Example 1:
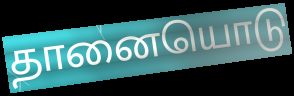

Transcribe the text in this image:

தானையொடு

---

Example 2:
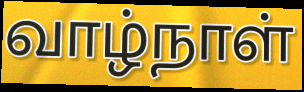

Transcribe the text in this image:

வாழ்நாள்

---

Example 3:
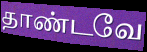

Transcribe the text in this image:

தாண்டவே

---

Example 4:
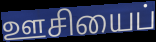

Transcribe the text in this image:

ஊசியைப்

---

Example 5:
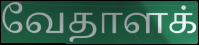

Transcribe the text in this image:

வேதாளக்